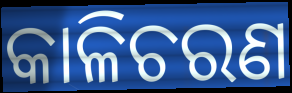
କାଳିଚରଣ